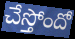
చేస్తోందో